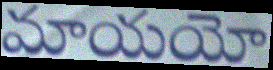
మాయయో